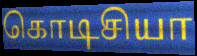
கொடிசியா